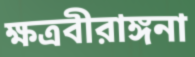
ক্ষত্রবীরাঙ্গনা